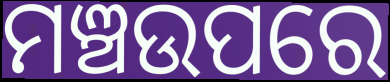
ମଞ୍ଚଉପରେ